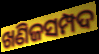
ଖଣିଜସମ୍ପଦ